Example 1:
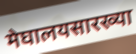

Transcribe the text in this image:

मेघालयसारख्या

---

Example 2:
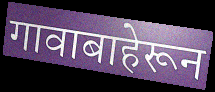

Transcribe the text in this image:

गावाबाहेरून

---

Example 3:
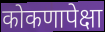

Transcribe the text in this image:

कोकणापेक्षा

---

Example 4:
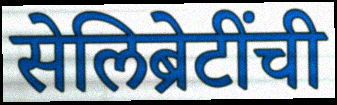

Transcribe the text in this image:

सेलिब्रेटींची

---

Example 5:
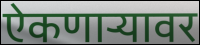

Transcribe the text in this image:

ऐकणाऱ्यावर